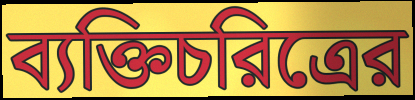
ব্যক্তিচরিত্রের